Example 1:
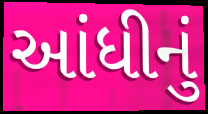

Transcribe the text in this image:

આંધીનું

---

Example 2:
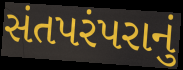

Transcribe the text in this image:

સંતપરંપરાનું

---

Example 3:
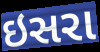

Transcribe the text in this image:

ઇસરા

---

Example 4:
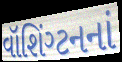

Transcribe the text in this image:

વૉશિંગ્ટનનાં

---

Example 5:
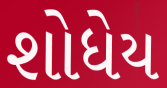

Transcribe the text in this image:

શોધેય